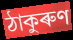
ঠাকুৰুণ